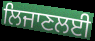
ਲਿਜਾਣਲਈ